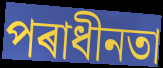
পৰাধীনতা